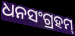
ଧନସଂଗ୍ରହମ୍